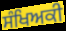
ਸੰਖਿਅਕੀ